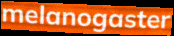
melanogaster